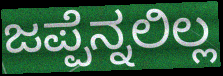
ಜಪ್ಪೆನ್ನಲಿಲ್ಲ